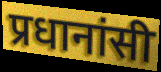
प्रधानांसी